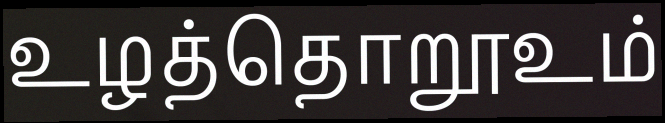
உழத்தொறூஉம்